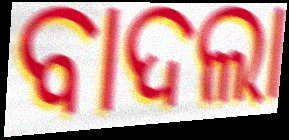
ବାଦଲା